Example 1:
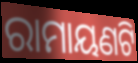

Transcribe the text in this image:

ରାମାୟଣଟି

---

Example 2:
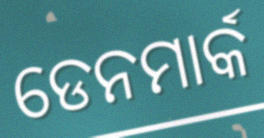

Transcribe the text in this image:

ଡେନମାର୍କ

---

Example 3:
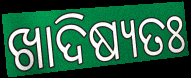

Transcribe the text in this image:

ଖାଦିଷ୍ଯତଃ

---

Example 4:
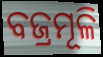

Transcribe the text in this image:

ବଜ୍ରମୂଳି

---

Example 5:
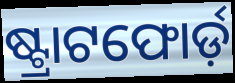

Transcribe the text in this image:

ଷ୍ଟ୍ରାଟଫୋର୍ଡ଼